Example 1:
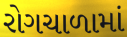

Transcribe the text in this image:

રોગચાળામાં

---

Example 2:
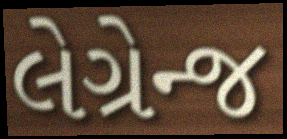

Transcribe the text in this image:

લેગ્રેન્જ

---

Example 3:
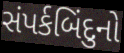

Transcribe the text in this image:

સંપર્કબિંદુનો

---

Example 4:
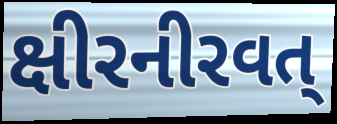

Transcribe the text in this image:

ક્ષીરનીરવત્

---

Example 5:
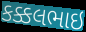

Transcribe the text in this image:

કક્કલભાઇ